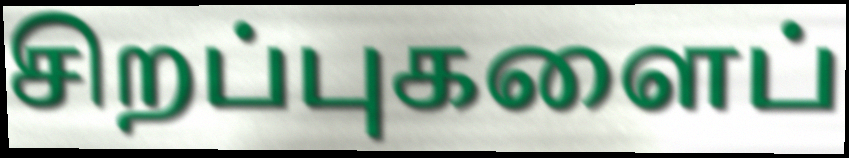
சிறப்புகளைப்